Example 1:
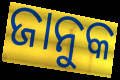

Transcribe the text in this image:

ଜାନୁକ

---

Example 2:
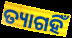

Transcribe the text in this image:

ତ୍ୟାଗହିଁ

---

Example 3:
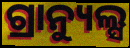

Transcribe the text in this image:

ଗ୍ରାନ୍ୟୁଲ୍ସ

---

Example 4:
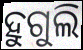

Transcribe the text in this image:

ହୁଗୁଲି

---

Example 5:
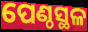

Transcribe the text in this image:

ପେଣ୍ଠସ୍ଥଳ